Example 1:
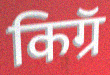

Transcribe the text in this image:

किग्रॅ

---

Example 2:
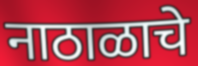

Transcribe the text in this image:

नाठाळाचे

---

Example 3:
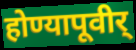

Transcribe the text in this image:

होण्यापूवीर्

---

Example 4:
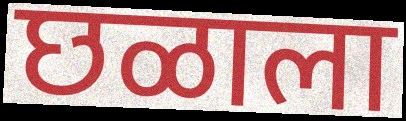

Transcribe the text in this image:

छळाला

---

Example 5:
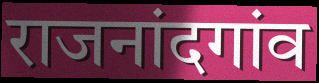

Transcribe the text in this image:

राजनांदगांव